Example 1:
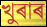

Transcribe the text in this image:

খুৰাৰ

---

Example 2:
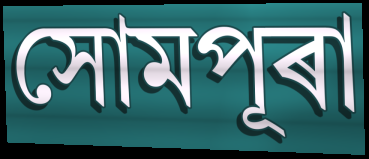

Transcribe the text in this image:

সোমপূৰা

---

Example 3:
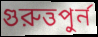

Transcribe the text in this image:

গুৰুত্তপুৰ্ন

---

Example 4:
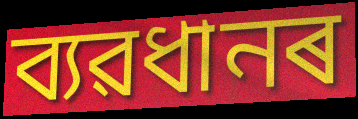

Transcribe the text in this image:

ব্যৱধানৰ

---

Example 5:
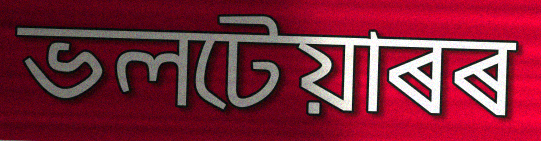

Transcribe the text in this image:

ভলটেয়াৰৰ